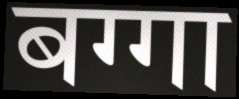
बग्गा